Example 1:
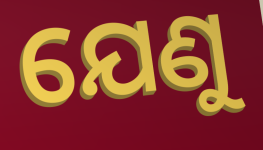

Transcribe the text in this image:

ଯେଣୁ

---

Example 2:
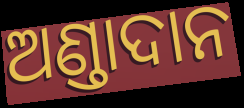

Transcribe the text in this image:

ଅଣ୍ଡାଦାନ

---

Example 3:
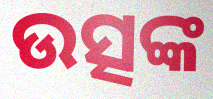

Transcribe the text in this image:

ଉତ୍ସଙ୍କ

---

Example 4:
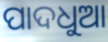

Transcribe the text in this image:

ପାଦଧୁଆ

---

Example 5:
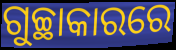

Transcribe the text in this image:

ଗୁଚ୍ଛାକାରରେ